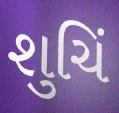
શુચિં